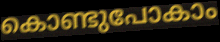
കൊണ്ടുപോകാം